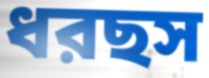
ধরছস